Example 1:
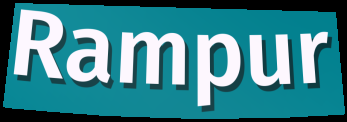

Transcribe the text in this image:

Rampur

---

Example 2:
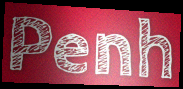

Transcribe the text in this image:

Penh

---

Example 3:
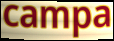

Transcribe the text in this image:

campa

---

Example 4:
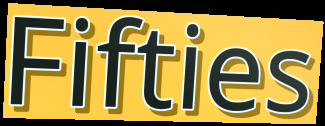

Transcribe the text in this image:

Fifties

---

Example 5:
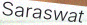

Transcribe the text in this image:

Saraswat